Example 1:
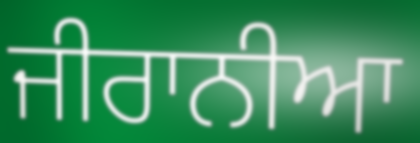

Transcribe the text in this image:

ਜੀਰਾਨੀਆ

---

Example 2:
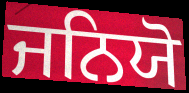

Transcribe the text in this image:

ਜਨਿਯੋ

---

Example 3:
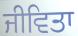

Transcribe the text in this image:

ਜੀਵਿਤਾ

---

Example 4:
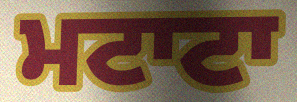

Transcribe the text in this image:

ਮਟਾਟਾ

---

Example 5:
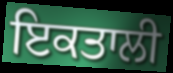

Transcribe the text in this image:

ਇਕਤਾਲੀ